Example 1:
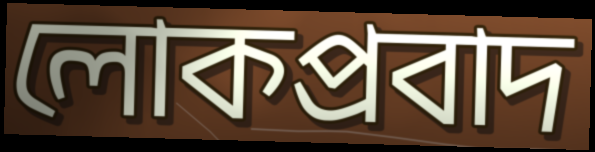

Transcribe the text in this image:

লোকপ্রবাদ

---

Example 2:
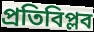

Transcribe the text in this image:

প্রতিবিপ্লব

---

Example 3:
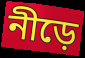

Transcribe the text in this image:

নীড়ে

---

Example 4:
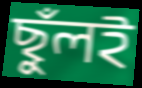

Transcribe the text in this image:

ছুঁলই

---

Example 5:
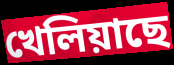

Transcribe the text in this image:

খেলিয়াছে